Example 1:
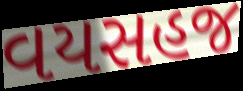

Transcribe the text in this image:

વયસહજ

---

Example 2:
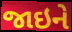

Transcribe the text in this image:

જાઇને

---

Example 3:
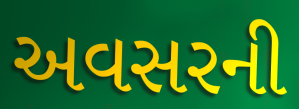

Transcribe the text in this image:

અવસરની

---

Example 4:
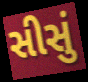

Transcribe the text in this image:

સીસું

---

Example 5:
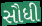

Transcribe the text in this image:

સૌધી